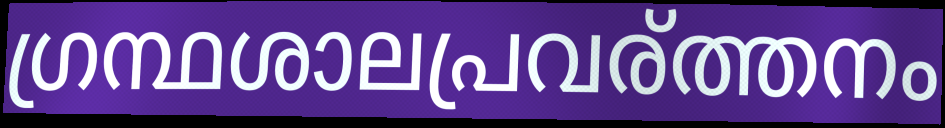
ഗ്രന്ഥശാലപ്രവര്ത്തനം